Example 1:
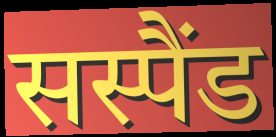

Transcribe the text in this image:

सस्पैंड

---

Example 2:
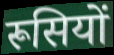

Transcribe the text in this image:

रूसियों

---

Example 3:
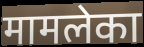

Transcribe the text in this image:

मामलेका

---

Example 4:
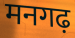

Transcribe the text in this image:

मनगढ़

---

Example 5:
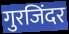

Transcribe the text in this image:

गुरजिंदर